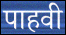
पाहवी